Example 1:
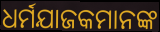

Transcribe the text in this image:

ଧର୍ମଯାଜକମାନଙ୍କ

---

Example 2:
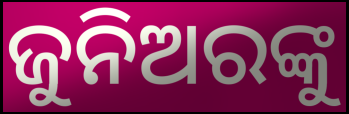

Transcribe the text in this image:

ଜୁନିଅରଙ୍କୁ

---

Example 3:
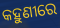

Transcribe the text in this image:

କହୁଣୀରେ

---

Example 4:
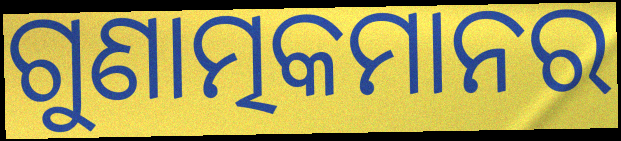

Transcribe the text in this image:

ଗୁଣାତ୍ମକମାନର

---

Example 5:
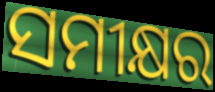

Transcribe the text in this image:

ସମୀକ୍ଷର